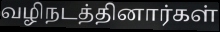
வழிநடத்தினார்கள்